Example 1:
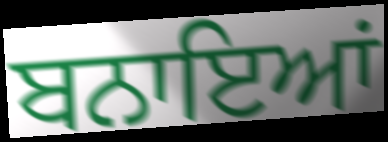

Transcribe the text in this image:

ਬਨਾਇਆਂ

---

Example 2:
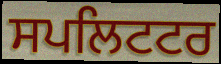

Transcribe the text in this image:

ਸਪਲਿਟਟਰ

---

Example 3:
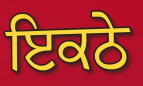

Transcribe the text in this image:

ਇਕਠੇ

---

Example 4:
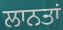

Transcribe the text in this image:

ਲਾਨਤਾਂ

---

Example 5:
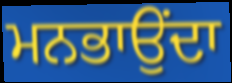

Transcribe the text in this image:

ਮਨਭਾਉਂਦਾ